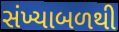
સંખ્યાબળથી